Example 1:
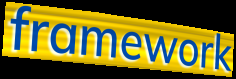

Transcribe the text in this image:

framework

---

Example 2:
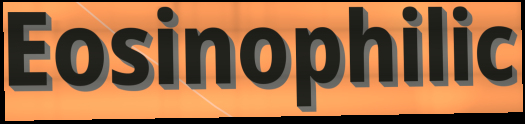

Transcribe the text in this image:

Eosinophilic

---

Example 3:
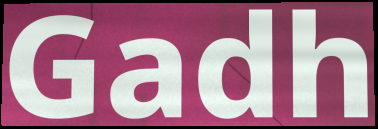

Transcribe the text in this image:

Gadh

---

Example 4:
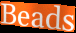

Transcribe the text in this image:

Beads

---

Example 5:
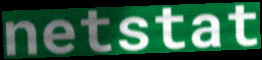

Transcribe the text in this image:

netstat